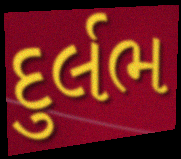
દુર્લભ